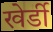
खेर्डी